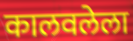
कालवलेला